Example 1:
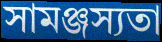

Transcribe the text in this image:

সামঞ্জস্যতা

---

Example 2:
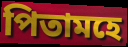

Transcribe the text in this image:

পিতামহে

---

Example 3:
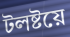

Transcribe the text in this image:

টলষ্টয়ে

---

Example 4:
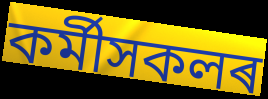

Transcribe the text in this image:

কৰ্মীসকলৰ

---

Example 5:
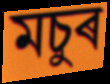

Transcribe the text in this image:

মচুৰ